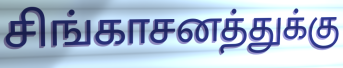
சிங்காசனத்துக்கு